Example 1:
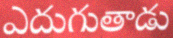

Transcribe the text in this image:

ఎదుగుతాడు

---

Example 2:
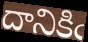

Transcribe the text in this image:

దానికిఁ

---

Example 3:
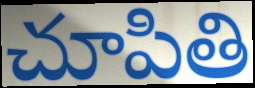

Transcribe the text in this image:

చూపితి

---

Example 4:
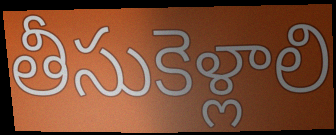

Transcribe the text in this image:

తీసుకెళ్లాలి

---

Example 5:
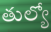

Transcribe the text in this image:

తుల్యో